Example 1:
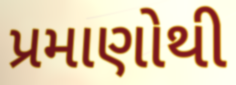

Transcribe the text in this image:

પ્રમાણોથી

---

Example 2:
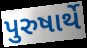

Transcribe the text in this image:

પુરુષાર્થે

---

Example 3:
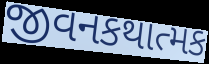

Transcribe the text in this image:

જીવનકથાત્મક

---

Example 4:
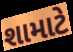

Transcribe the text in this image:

શામાટે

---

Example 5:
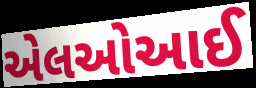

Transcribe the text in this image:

એલઓઆઈ